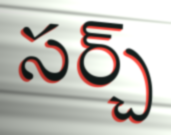
సర్చ్